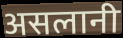
असलानी